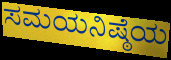
ಸಮಯನಿಷ್ಠೆಯ